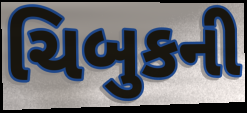
ચિબુકની